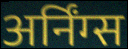
अर्निंग्स